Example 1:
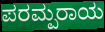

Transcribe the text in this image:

ಪರಮ್ಪರಾಯ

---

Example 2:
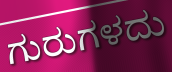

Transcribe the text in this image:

ಗುರುಗಳದು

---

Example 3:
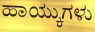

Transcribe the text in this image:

ಹಾಯ್ಕುಗಳು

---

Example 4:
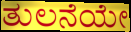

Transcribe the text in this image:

ತುಲನೆಯೇ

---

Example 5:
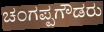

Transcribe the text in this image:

ಚಂಗಪ್ಪಗೌಡರು